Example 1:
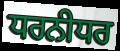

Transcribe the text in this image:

ਧਰਨੀਧਰ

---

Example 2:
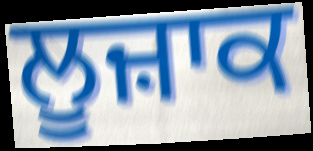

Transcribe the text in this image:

ਲੂਜ਼ਾਕ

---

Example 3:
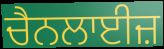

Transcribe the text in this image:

ਚੈਨਲਾਈਜ਼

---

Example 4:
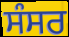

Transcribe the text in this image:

ਸੰਸਰ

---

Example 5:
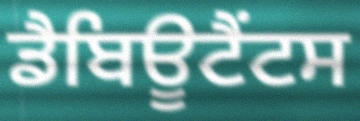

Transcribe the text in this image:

ਡੈਬਿਊਟੈਂਟਸ